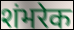
शंभरेक